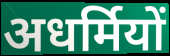
अधर्मियों